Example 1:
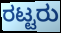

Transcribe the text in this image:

ರಟ್ಟರು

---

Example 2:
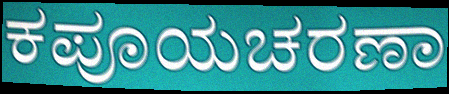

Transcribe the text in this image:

ಕಪೂಯಚರಣಾ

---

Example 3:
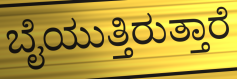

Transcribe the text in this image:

ಬೈಯುತ್ತಿರುತ್ತಾರೆ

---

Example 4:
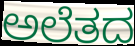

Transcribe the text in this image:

ಅಲೆತದ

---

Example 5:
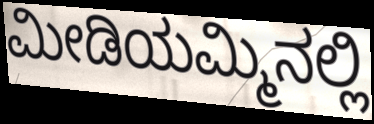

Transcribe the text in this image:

ಮೀಡಿಯಮ್ಮಿನಲ್ಲಿ